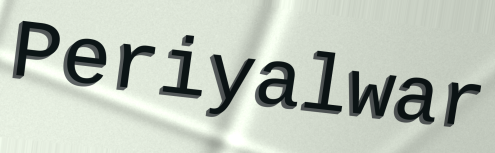
Periyalwar